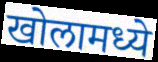
खोलामध्ये